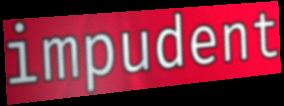
impudent